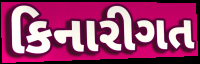
કિનારીગત